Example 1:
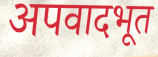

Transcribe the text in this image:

अपवादभूत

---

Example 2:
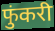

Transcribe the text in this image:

फुंकरी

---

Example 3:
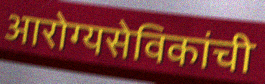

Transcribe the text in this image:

आरोग्यसेविकांची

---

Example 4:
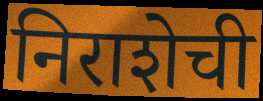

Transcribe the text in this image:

निराशेची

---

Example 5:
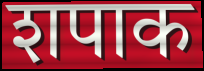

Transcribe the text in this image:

शपाक